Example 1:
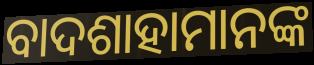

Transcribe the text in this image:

ବାଦଶାହାମାନଙ୍କ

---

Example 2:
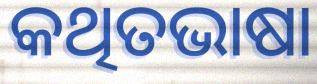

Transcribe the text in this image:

କଥିତଭାଷା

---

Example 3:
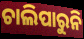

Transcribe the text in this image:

ଚାଲିପାରୁନି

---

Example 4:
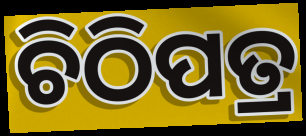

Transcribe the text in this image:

ଚିଠିପତ୍ର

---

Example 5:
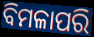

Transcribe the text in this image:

ବିମଳାପରି